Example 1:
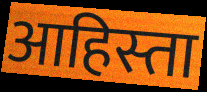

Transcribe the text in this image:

आहिस्‍ता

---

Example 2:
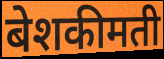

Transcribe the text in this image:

बेशकीमती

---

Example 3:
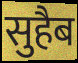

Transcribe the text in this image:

सुहैब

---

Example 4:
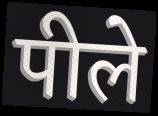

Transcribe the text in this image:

पीले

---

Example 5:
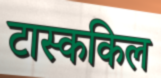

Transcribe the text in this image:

टास्ककिल